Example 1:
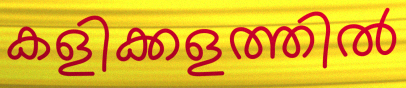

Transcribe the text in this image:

കളിക്കളത്തിൽ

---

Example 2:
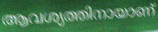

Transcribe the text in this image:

ആവശ്യത്തിനായാണ്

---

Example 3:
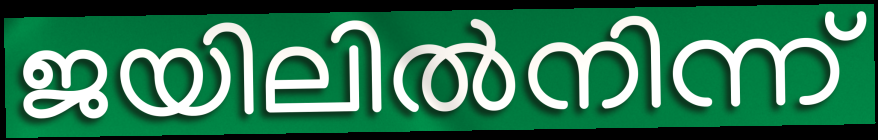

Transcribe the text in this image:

ജയിലിൽനിന്ന്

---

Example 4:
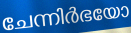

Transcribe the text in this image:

ചേന്നിർഭയോ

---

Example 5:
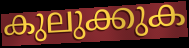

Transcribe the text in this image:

കുലുക്കുക